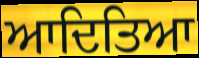
ਆਦਿਤਿਆ